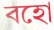
বহো